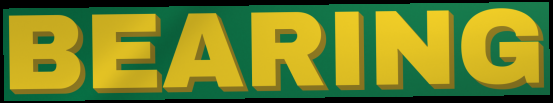
BEARING